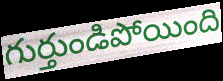
గుర్తుండిపోయింది